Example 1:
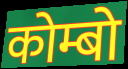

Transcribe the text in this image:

कोम्बो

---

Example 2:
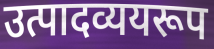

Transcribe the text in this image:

उत्पादव्ययरूप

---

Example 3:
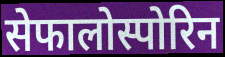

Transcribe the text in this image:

सेफालोस्पोरिन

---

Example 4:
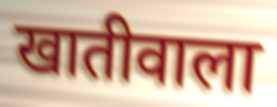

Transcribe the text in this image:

खातीवाला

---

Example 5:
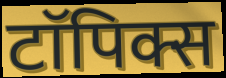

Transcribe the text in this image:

टॉपिक्स